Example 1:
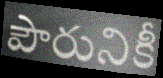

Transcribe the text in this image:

పౌరునికీ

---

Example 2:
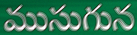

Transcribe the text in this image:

ముసుగున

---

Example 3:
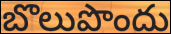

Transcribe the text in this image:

బొలుపొందు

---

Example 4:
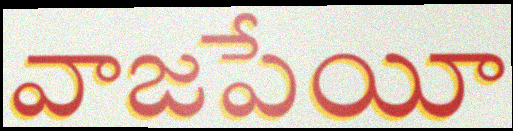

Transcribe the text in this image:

వాజపేయీ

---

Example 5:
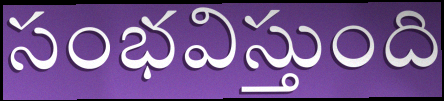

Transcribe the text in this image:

సంభవిస్తుంది